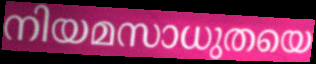
നിയമസാധുതയെ